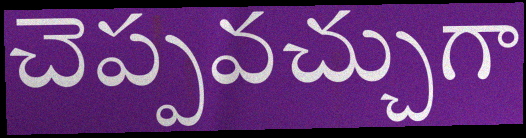
చెప్పవచ్చుగా